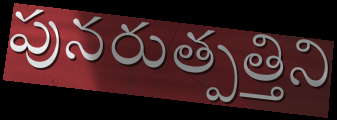
పునరుత్పత్తిని